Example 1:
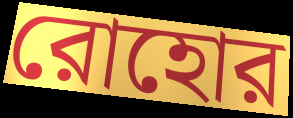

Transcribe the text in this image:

রোহোর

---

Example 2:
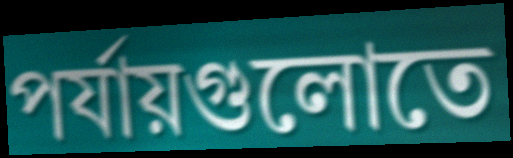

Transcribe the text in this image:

পর্যায়গুলোতে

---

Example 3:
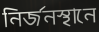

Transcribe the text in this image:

নির্জনস্থানে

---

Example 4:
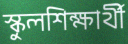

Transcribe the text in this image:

স্কুলশিক্ষার্থী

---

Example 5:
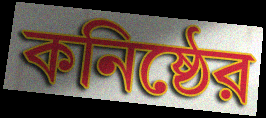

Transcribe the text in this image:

কনিষ্ঠের